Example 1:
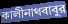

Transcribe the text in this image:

কালীনাথবাবুর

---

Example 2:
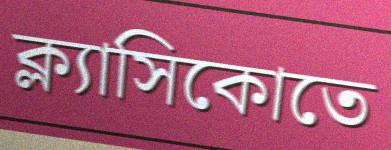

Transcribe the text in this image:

ক্ল্যাসিকোতে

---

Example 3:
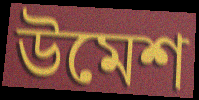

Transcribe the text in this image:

উমেশ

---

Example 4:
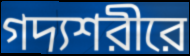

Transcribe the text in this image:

গদ্যশরীরে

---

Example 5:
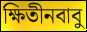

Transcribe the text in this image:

ক্ষিতীনবাবু